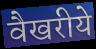
वैखरीये